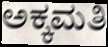
ಅಕ್ಕಮತಿ